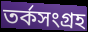
তর্কসংগ্রহ